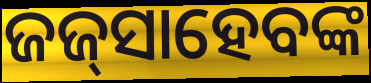
ଜଜ୍‌ସାହେବଙ୍କ